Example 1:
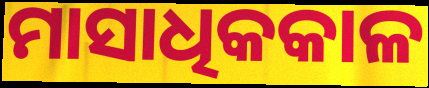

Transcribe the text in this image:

ମାସାଧିକକାଳ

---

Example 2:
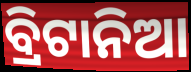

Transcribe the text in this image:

ବ୍ରିଟାନିଆ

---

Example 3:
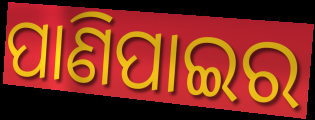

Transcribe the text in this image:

ପାଣିପାଇର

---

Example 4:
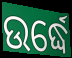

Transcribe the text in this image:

ଉର୍ଦ୍ଧେ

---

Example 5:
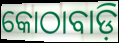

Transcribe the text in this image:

କୋଠାବାଡ଼ି